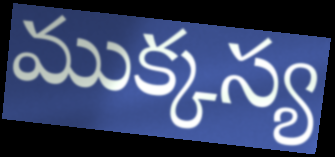
ముక్కస్య